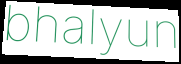
bhalyun